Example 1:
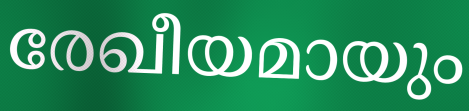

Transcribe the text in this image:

രേഖീയമായും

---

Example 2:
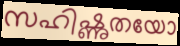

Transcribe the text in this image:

സഹിഷ്ണുതയോ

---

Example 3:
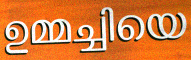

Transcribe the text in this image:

ഉമ്മച്ചിയെ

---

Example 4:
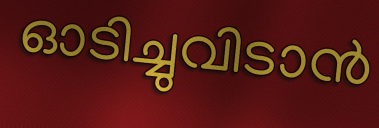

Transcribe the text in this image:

ഓടിച്ചുവിടാൻ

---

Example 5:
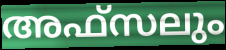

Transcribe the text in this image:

അഫ്സലും